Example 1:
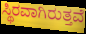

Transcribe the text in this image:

ಸ್ಥಿರವಾಗಿರುತ್ತವೆ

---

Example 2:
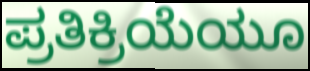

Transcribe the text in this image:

ಪ್ರತಿಕ್ರಿಯೆಯೂ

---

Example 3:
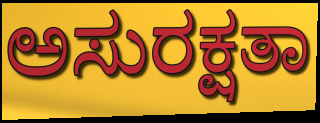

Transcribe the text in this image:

ಅಸುರಕ್ಷತಾ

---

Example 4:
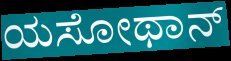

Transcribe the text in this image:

ಯಸೋಥಾನ್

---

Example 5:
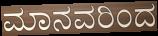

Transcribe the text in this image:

ಮಾನವರಿಂದ